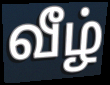
வீழ்